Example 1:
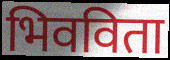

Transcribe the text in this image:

भिवविता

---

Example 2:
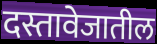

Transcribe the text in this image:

दस्तावेजातील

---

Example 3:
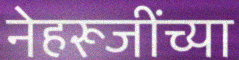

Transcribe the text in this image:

नेहरूजींच्या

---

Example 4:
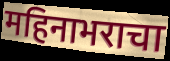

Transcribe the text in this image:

महिनाभराचा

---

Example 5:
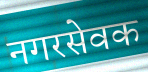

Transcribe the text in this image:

नगरसेवक